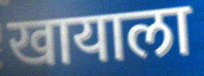
खायाला